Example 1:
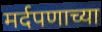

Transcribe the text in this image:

मर्दपणाच्या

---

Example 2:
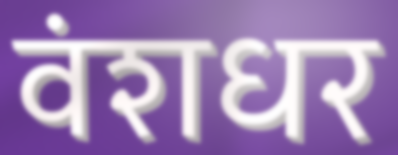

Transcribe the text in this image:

वंशधर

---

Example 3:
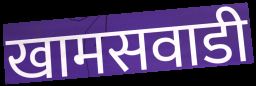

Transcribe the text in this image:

खामसवाडी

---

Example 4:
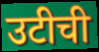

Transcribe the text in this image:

उटीची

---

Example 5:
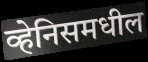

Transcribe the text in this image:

व्हेनिसमधील